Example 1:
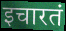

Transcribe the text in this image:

इचारतं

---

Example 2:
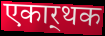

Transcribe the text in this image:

एकार्थक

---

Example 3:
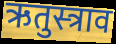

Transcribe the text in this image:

ऋतुस्त्राव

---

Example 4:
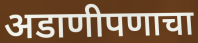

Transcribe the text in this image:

अडाणीपणाचा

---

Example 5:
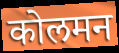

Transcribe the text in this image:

कोलमन